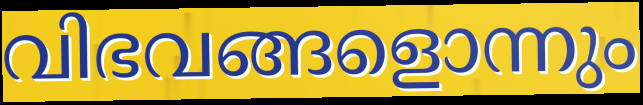
വിഭവങ്ങളൊന്നും